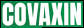
COVAXIN